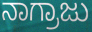
ನಾಗ್ರಾಜು